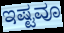
ಇಷ್ಟವೂ